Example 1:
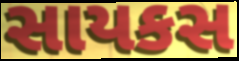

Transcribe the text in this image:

સાયકસ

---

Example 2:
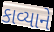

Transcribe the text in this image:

કાવ્યાને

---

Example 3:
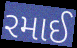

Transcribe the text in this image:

રમાઈ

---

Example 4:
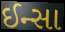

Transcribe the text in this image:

ઈન્સા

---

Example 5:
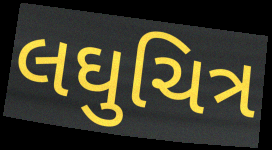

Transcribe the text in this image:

લઘુચિત્ર